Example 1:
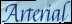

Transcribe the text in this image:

Arterial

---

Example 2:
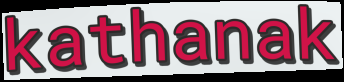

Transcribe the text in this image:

kathanak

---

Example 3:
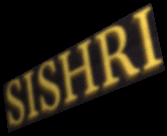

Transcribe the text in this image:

SISHRI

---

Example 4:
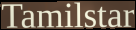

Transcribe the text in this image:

Tamilstar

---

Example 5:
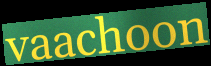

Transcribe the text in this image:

vaachoon